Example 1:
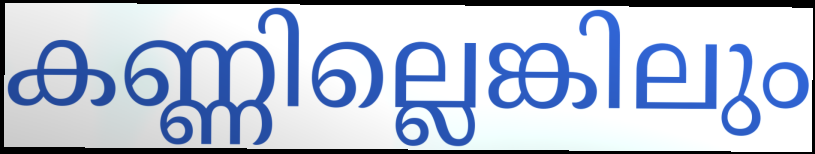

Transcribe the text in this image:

കണ്ണില്ലെങ്കിലും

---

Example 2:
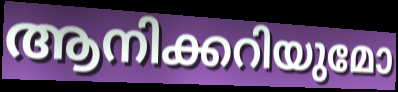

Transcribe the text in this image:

ആനിക്കറിയുമോ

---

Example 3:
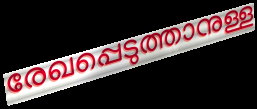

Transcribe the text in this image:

രേഖപ്പെടുത്താനുള്ള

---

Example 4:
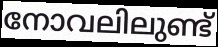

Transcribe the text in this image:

നോവലിലുണ്ട്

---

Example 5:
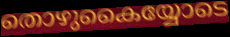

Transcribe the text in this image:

തൊഴുകൈയ്യോടെ